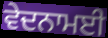
ਵੇਦਨਾਮਈ